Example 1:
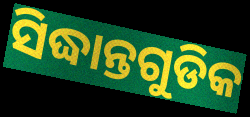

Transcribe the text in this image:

ସିଦ୍ଧାନ୍ତଗୁଡିକ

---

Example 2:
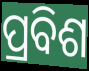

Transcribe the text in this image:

ପ୍ରବିଶ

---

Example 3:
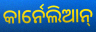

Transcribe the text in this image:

କାର୍ନେଲିଆନ୍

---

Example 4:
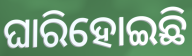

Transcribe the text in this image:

ଘାରିହୋଇଛି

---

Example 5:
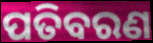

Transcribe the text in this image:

ପତିବରଣ